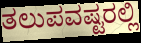
ತಲುಪವಷ್ಟರಲ್ಲಿ